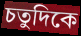
চতুদিকে